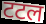
टटल